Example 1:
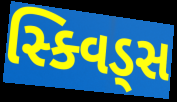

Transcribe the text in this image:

સ્ક્વિડ્સ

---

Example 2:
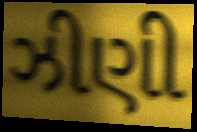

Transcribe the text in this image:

ઝીણી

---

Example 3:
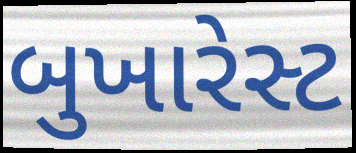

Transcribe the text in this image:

બુખારેસ્ટ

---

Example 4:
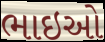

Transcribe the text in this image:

ભાઇઓ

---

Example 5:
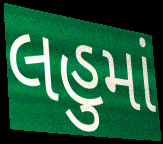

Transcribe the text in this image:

લહુમાં